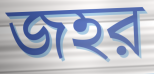
জহর